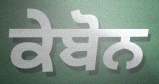
ਕੇਬੋਨ